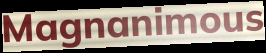
Magnanimous